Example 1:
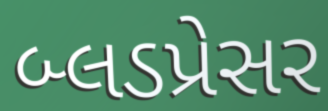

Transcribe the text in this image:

બ્લડપ્રેસર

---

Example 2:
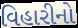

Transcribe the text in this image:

વિહારીનો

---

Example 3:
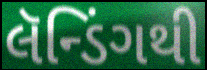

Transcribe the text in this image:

લૅન્ડિંગથી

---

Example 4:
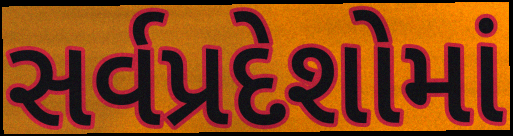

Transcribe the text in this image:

સર્વપ્રદેશોમાં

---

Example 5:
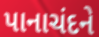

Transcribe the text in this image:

પાનાચંદને